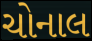
ચોનાલ